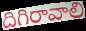
దిగిరావాలి